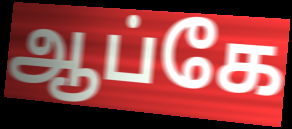
ஆப்கே